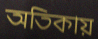
অতিকায়